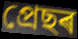
প্ৰেছৰ